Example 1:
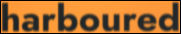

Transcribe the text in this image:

harboured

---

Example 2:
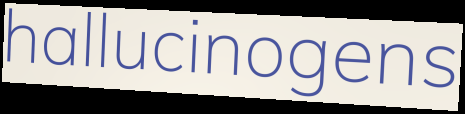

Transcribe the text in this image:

hallucinogens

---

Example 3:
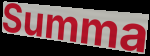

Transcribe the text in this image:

Summa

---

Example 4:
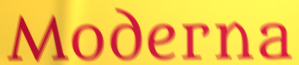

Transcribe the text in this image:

Moderna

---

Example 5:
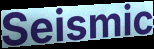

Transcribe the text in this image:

Seismic